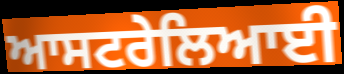
ਆਸਟਰੇਲਿਆਈ